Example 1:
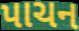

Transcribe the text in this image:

પાચન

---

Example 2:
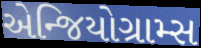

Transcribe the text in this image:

એન્જિયોગ્રામ્સ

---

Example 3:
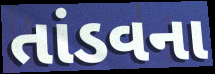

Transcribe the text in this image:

તાંડવના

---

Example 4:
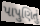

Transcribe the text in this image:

પાપુણિતું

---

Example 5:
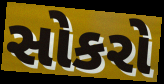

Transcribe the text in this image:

સોકરો